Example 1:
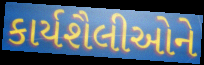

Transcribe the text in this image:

કાર્યશૈલીઓને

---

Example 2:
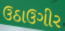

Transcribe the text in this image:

ઉઠાઉગીર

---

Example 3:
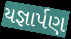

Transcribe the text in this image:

યજ્ઞાર્પણ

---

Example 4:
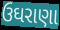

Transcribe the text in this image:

ઉઘરાણા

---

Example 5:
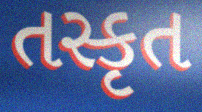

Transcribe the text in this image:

તસ્કૃત